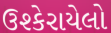
ઉશ્કેરાયેલો